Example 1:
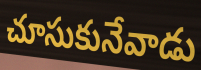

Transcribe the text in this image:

చూసుకునేవాడు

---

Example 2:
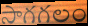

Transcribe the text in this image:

సాగగలం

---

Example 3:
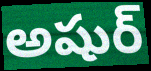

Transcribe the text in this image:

అషుర్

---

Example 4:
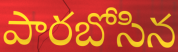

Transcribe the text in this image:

పారబోసిన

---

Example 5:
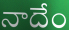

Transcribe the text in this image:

నాదేం